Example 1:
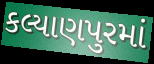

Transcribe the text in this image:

કલ્યાણપુરમાં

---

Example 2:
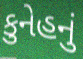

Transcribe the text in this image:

કુનેહનું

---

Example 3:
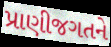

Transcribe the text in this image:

પ્રાણીજગતને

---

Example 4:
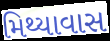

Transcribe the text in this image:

મિથ્યાવાસ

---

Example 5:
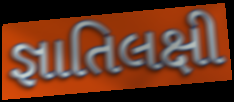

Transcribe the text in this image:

જ્ઞાતિલક્ષી